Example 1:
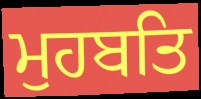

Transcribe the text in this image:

ਮੁਹਬਤਿ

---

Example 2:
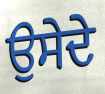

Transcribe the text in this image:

ਉਸੇਦੇ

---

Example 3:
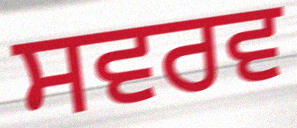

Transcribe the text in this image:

ਸਵਰਵ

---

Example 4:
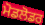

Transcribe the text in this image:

ਮੋਡਲੋਡਰ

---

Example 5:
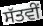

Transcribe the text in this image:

ਸੱਤਵੀਂ